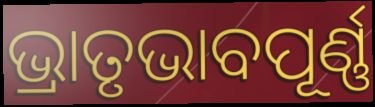
ଭ୍ରାତୃଭାବପୂର୍ଣ୍ଣ